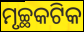
ମୃଚ୍ଛକଟିକ